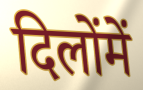
दिलोंमें